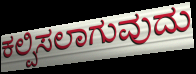
ಕಲ್ಪಿಸಲಾಗುವುದು